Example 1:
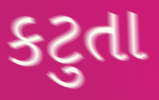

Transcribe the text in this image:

કટુતા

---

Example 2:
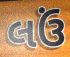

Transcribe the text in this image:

લઉં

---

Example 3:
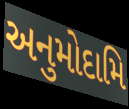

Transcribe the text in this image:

અનુમોદામિ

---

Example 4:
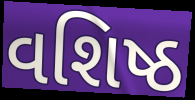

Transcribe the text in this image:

વશિષ્ઠ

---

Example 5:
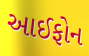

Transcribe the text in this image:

આઈફોન